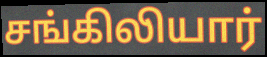
சங்கிலியார்